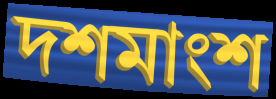
দশমাংশ